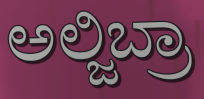
ಅಲ್ಜಿಬ್ರಾ